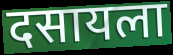
दसायला